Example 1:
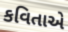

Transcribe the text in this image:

કવિતાએ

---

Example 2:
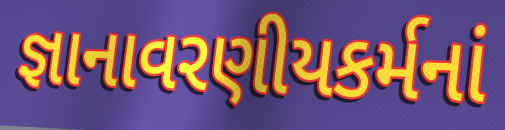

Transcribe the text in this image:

જ્ઞાનાવરણીયકર્મનાં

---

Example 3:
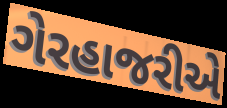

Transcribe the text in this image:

ગેરહાજરીએ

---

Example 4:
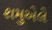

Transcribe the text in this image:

શમુએલે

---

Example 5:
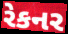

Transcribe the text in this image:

રેકનર